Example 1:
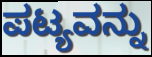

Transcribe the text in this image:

ಪಟ್ಯವನ್ನು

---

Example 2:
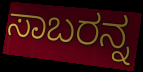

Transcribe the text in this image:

ಸಾಬರನ್ನ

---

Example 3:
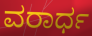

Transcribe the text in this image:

ವರಾರ್ಧ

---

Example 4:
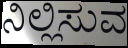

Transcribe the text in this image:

ನಿಲ್ಲಿಸುವ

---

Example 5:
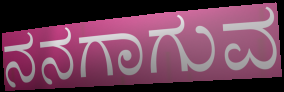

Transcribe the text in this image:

ನನಗಾಗುವ